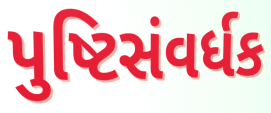
પુષ્ટિસંવર્ધક